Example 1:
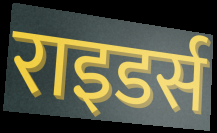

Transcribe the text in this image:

राइडर्स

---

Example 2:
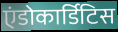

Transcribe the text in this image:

एंडोकार्डिटिस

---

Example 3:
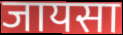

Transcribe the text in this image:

जायसा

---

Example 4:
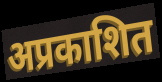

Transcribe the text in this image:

अप्रकाशित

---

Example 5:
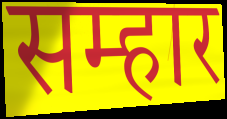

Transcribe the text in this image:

सम्हार